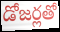
డోజర్లతో